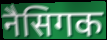
नैसिगक